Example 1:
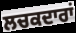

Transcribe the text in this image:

ਲਚਕਦਾਰਾਂ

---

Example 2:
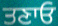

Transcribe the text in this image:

ਤਣਾਓ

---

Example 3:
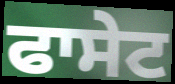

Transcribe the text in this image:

ਫਾਸੇਟ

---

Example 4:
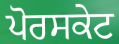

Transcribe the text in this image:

ਪੋਰਸਕੇਟ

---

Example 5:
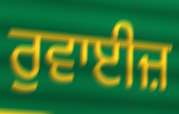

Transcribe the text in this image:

ਰੁਵਾਈਜ਼